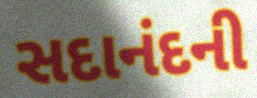
સદાનંદની